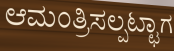
ಆಮಂತ್ರಿಸಲ್ಪಟ್ಟಾಗ